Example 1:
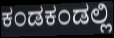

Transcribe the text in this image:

ಕಂಡಕಂಡಲ್ಲಿ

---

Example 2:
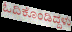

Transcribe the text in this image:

ಓದಿಕೊಂಡಿದ್ದಳು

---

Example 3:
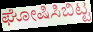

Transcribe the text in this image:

ಘೋಷಿಸಿಬಿಟ್ಟ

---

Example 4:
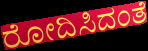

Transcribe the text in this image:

ರೋದಿಸಿದಂತೆ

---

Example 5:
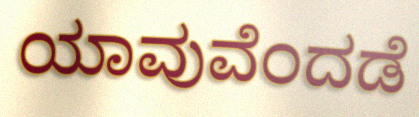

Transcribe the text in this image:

ಯಾವುವೆಂದಡೆ